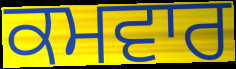
ਕਮਵਾਰ